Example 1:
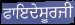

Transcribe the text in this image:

ਫਾਇਦੇਸੂਰਜੀ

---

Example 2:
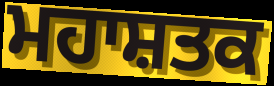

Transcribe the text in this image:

ਮਹਾਸ਼ਤਕ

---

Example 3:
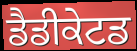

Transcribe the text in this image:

ਡੈਡੀਕੇਟਡ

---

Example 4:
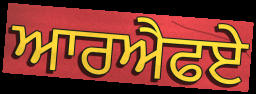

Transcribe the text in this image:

ਆਰਐਫਏ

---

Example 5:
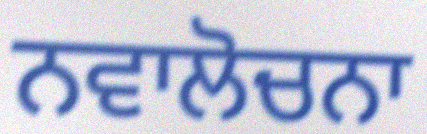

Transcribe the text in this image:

ਨਵਾਲੋਚਨਾ